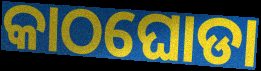
କାଠଘୋଡା